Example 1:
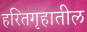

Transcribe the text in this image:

हरितगृहातील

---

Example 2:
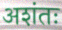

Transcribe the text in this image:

अशंतः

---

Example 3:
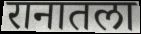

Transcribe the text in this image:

रानातला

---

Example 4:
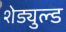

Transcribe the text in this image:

शेड्युल्ड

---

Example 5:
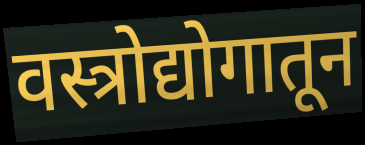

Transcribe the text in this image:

वस्त्रोद्योगातून